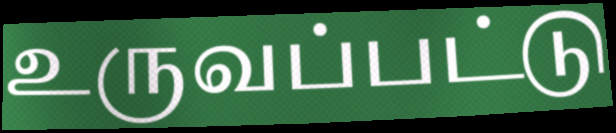
உருவப்பட்டு